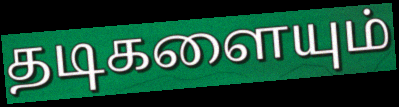
தடிகளையும்